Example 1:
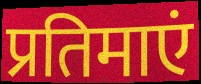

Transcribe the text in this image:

प्रतिमाएं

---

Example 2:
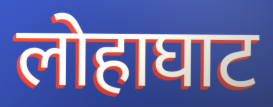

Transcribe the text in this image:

लोहाघाट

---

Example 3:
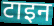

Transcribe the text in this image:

टाइन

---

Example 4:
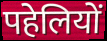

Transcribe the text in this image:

पहेलियों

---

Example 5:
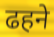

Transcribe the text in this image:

ढहने